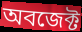
অবজেক্ট